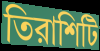
তিরাশিটি